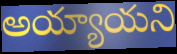
అయ్యాయని